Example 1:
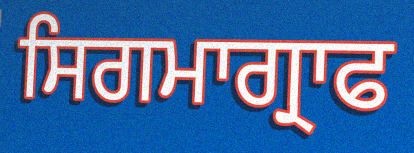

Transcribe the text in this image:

ਸਿਗਮਾਗ੍ਰਾਫ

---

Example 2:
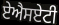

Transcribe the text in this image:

ਏਐਸਏਟੀ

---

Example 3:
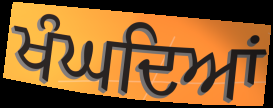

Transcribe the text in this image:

ਖੰਘਦਿਆਂ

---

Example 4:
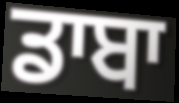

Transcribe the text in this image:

ਡਾਬਾ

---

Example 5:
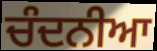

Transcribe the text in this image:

ਚੰਦਨੀਆ